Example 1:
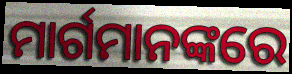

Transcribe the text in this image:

ମାର୍ଗମାନଙ୍କରେ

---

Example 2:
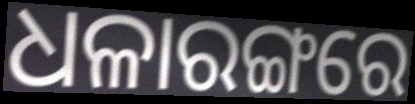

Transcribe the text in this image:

ଧଳାରଙ୍ଗରେ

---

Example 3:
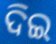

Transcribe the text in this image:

ଦିଇ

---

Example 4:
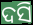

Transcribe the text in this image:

ଦସି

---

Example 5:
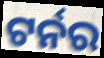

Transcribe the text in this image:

ଟର୍ନର